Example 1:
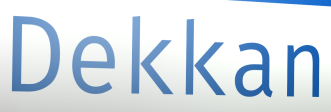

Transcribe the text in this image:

Dekkan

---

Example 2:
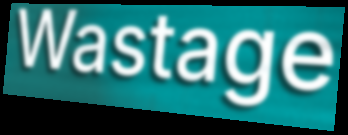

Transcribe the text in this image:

Wastage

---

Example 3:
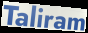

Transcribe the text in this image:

Taliram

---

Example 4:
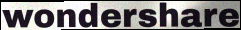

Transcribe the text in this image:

wondershare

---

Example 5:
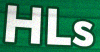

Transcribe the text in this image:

HLs